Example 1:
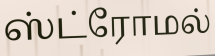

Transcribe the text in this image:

ஸ்ட்ரோமல்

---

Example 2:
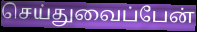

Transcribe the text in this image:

செய்துவைப்பேன்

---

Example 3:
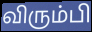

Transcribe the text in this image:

விரும்பி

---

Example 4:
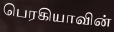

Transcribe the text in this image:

பெரகியாவின்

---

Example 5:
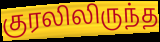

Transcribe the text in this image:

குரலிலிருந்த